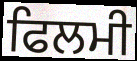
ਫਿਲਮੀ